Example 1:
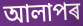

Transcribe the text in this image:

আলাপৰ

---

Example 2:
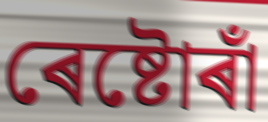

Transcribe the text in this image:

ৰেষ্টোৰাঁ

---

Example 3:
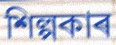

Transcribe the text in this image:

শিল্পকাৰ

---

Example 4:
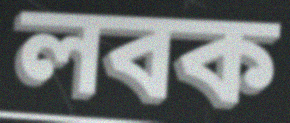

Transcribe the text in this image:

লবক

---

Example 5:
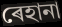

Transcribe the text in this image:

ৰেহানা